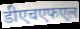
डीएचएफएल